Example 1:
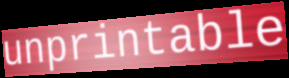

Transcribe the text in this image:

unprintable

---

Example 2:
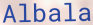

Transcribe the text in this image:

Albala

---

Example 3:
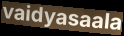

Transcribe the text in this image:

vaidyasaala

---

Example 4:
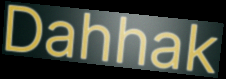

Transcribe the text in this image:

Dahhak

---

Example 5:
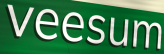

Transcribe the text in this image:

veesum